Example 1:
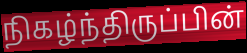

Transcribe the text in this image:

நிகழ்ந்திருப்பின்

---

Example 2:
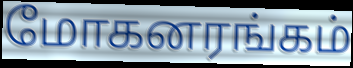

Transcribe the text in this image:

மோகனரங்கம்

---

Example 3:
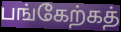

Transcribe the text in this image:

பங்கேற்கத்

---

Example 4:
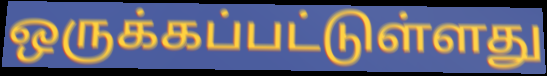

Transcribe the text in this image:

ஒருக்கப்பட்டுள்ளது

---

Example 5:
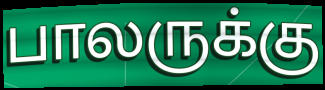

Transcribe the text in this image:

பாலருக்கு